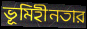
ভূমিহীনতার